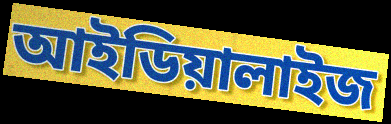
আইডিয়ালাইজ